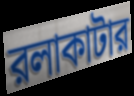
রলাকাটার